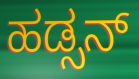
ಹಡ್ಸನ್